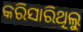
କରିସାରିଥିଲୁ